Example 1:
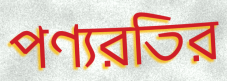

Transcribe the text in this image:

পণ্যরতির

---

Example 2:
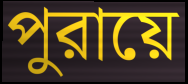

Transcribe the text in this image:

পুরায়ে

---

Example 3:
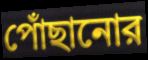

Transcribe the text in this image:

পোঁছানোর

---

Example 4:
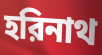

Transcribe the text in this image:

হরিনাথ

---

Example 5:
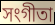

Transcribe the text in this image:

সংগীতা